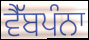
ਵੈੱਬਪੰਨਾ